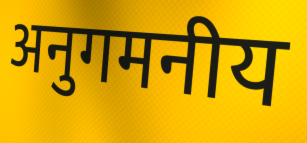
अनुगमनीय